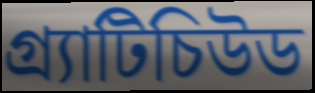
গ্র্যাটিচিউড